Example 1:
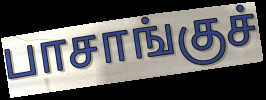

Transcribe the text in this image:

பாசாங்குச்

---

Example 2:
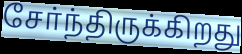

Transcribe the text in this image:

சேர்ந்திருக்கிறது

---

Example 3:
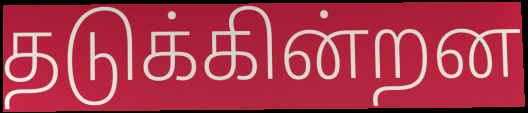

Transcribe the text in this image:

தடுக்கின்றன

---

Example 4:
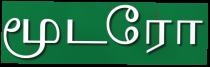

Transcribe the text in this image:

மூடரோ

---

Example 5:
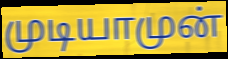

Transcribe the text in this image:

முடியாமுன்